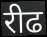
रीढ